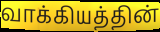
வாக்கியத்தின்